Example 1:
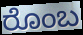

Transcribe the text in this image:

ರೊಂಬ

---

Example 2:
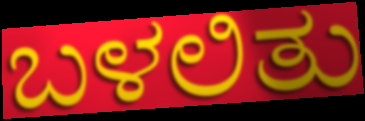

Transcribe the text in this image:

ಬಳಲಿತು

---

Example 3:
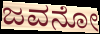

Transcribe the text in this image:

ಜವನೋ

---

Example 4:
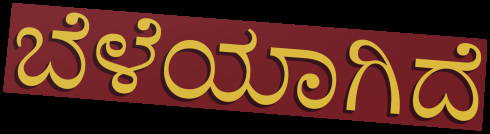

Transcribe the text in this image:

ಬೆಳೆಯಾಗಿದೆ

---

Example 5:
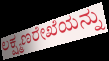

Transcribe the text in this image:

ಲಕ್ಷ್ಮಣರೇಖೆಯನ್ನು